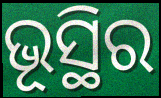
ଭୂସ୍ଥିର